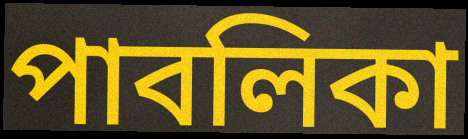
পাবলিকা